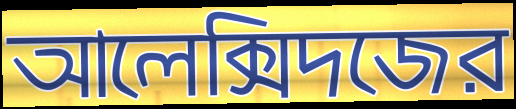
আলেক্সিদজের